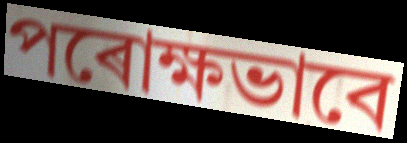
পৰোক্ষভাবে